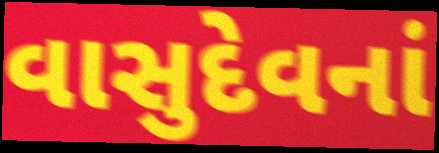
વાસુદેવનાં